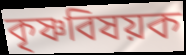
কৃষ্ণবিষয়ক